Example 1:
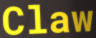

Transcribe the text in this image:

Claw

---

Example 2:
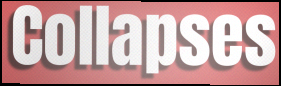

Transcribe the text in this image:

Collapses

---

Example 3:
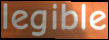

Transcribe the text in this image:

legible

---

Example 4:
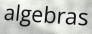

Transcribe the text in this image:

algebras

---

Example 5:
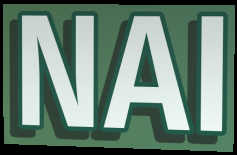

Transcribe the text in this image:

NAI